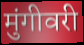
मुंगीवरी